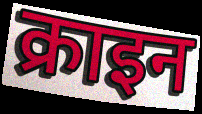
क्राइन